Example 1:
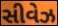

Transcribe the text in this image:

સીવેઝ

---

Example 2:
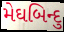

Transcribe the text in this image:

મેઘબિન્દુ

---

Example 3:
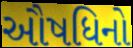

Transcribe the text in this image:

ઔષધિનો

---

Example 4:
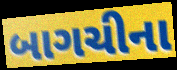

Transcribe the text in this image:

બાગચીના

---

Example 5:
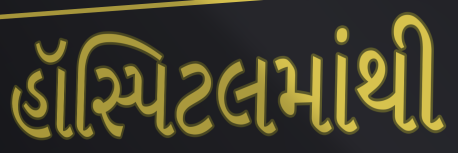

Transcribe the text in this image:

હૉસ્પિટલમાંથી